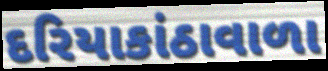
દરિયાકાંઠાવાળા